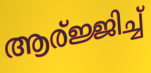
ആര്ജ്ജിച്ച്